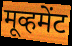
मूव्हमेंट